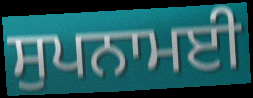
ਸੁਪਨਾਮਈ